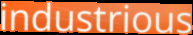
industrious